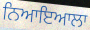
ਨਿਆਇਆਲਾ